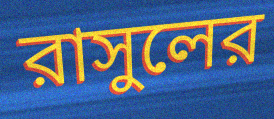
রাসুলের